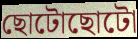
ছোটোছোটো